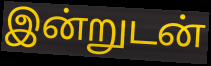
இன்றுடன்